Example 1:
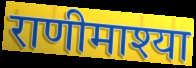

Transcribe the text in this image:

राणीमाश्या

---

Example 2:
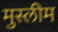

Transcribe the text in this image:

मुस्लीम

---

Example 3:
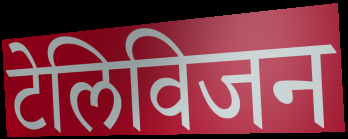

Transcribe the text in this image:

टेलिविजन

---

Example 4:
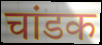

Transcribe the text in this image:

चांडक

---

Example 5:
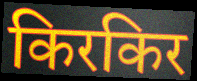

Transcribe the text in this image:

किरकिर